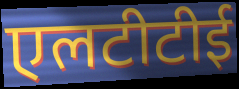
एलटीटीई